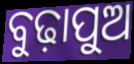
ବୁଢ଼ାପୁଅ